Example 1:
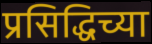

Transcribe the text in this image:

प्रसिद्धिच्या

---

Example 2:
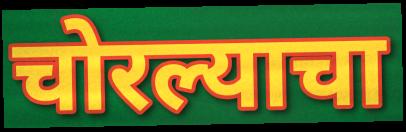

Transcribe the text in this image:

चोरल्याचा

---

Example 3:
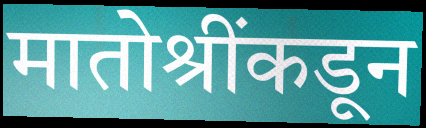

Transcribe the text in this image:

मातोश्रींकडून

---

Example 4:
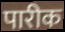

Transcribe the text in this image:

पारीक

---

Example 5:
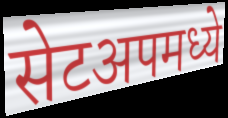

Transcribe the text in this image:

सेटअपमध्ये